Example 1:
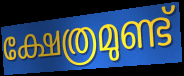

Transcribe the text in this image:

ക്ഷേത്രമുണ്ട്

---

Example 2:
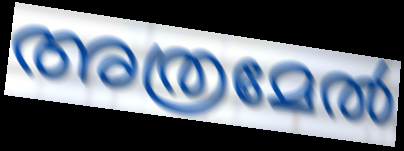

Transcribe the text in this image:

അത്രമേൽ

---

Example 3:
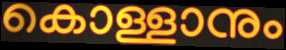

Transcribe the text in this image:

കൊള്ളാനും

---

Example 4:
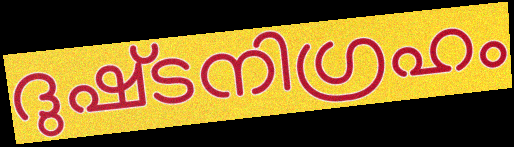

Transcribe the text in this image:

ദുഷ്‌ടനിഗ്രഹം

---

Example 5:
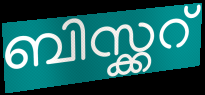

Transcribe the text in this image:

ബിസ്ക്കറ്